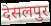
देसलपुर